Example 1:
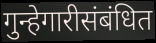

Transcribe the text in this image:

गुन्हेगारीसंबंधित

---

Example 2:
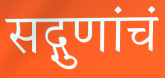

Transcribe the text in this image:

सद्गुणांचं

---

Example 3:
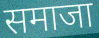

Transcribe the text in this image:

समाजा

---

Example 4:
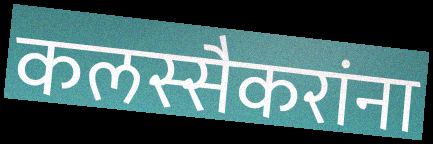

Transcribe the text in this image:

कलस्सैकरांना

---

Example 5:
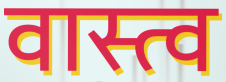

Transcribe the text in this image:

वास्त्व